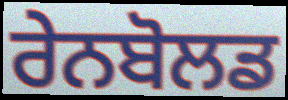
ਰੇਨਬੋਲਡ